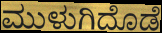
ಮುಳುಗಿದೊಡೆ